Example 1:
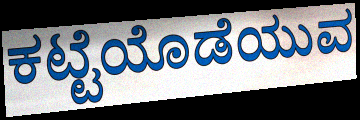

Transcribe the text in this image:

ಕಟ್ಟೆಯೊಡೆಯುವ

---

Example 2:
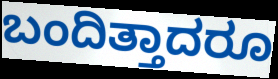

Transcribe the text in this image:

ಬಂದಿತ್ತಾದರೂ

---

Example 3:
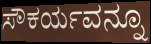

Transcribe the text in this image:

ಸೌಕರ್ಯವನ್ನೂ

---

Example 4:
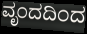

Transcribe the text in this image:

ವೃಂದದಿಂದ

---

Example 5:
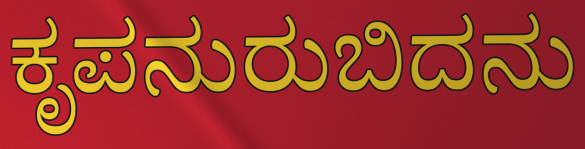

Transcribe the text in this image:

ಕೃಪನುರುಬಿದನು